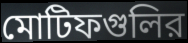
মোটিফগুলির